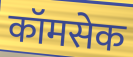
कॉमसेक